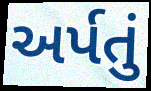
અર્પતું